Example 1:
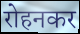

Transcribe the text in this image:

रोहनकर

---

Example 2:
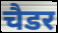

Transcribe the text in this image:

चैडर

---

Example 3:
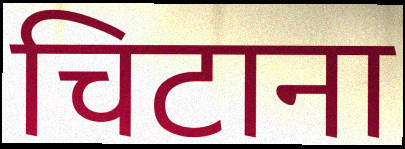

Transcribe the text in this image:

चिटाना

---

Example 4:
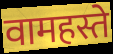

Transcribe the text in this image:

वामहस्ते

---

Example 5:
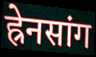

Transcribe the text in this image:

ह्रेनसांग